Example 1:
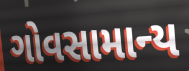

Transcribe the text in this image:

ગોવસામાન્ય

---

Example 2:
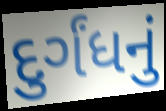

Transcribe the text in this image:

દુર્ગંધનું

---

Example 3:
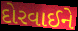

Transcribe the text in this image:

દોરવાઈને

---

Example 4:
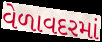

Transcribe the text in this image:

વેળાવદરમાં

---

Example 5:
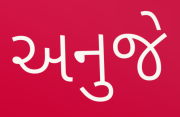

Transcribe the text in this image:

અનુજે